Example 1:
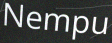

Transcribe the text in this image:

Nempu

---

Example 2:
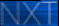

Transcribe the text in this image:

NXT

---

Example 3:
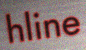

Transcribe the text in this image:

hline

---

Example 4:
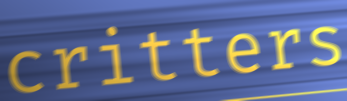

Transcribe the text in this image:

critters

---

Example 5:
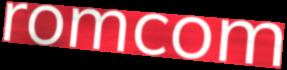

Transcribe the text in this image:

romcom